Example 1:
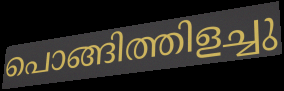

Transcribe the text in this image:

പൊങ്ങിത്തിളച്ചു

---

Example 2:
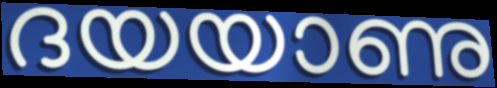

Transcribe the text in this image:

ദയയാണു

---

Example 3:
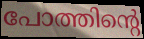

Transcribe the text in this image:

പോത്തിന്റെ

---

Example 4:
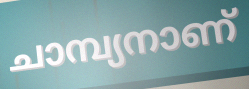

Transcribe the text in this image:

ചാമ്പ്യനാണ്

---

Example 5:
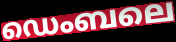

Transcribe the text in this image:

ഡെംബലെ